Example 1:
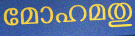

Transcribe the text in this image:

മോഹമതു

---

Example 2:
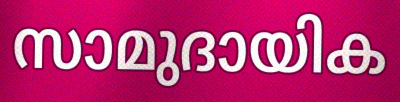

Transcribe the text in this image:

സാമുദായിക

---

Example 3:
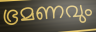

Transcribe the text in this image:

ഭ്രമണവും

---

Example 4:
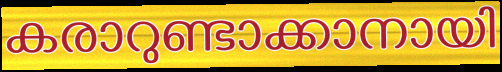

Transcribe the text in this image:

കരാറുണ്ടാക്കാനായി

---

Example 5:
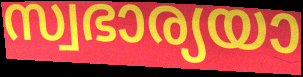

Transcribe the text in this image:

സ്വഭാര്യയാ